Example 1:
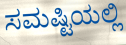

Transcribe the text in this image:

ಸಮಷ್ಟಿಯಲ್ಲಿ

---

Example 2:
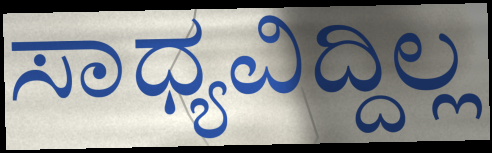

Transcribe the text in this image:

ಸಾಧ್ಯವಿದ್ದಿಲ್ಲ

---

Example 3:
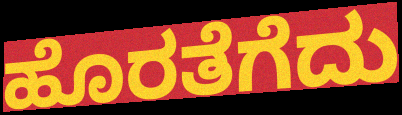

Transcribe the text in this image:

ಹೊರತೆಗೆದು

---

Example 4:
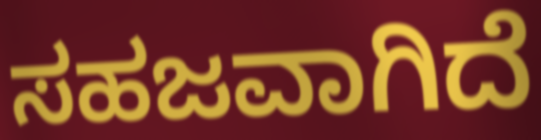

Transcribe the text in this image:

ಸಹಜವಾಗಿದೆ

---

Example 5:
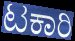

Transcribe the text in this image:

ಟಕಾರಿ